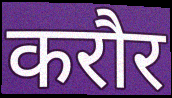
करौर